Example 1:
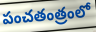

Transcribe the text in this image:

పంచతంత్రంలో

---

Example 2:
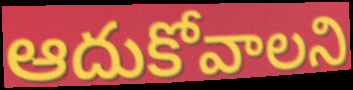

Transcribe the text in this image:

ఆదుకోవాలని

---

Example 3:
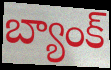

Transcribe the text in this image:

బ్యాంక్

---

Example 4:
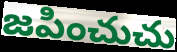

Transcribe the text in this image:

జపించుచు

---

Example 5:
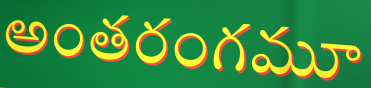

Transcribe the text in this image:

అంతరంగమూ